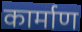
कार्माण